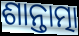
ଶାନ୍ତାତ୍ମା